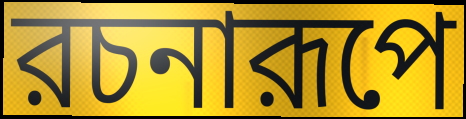
রচনারূপে